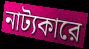
নাট্যকারে